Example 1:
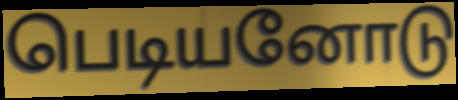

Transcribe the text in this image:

பெடியனோடு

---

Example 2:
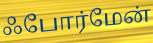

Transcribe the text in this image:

ஃபோர்மேன்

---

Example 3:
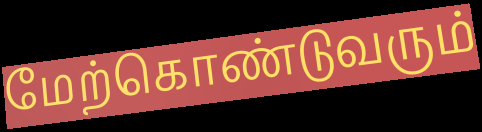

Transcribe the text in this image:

மேற்கொண்டுவரும்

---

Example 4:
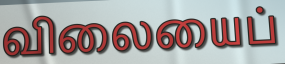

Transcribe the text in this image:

விலையைப்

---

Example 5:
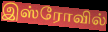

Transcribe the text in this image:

இஸ்ரோவில்